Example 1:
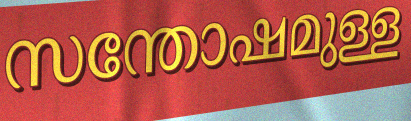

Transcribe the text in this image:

സന്തോഷമുള്ള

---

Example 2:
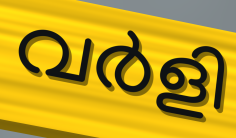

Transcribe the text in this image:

വർളി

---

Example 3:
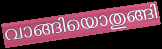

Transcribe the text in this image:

വാങ്ങിയൊതുങ്ങി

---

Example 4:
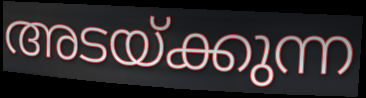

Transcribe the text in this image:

അടയ്ക്കുന്ന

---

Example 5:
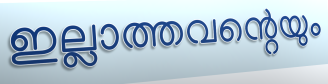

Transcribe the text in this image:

ഇല്ലാത്തവന്റെയും